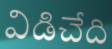
విడిచేది